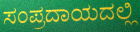
ಸಂಪ್ರದಾಯದಲ್ಲಿ